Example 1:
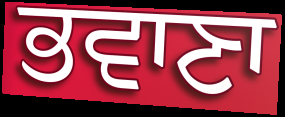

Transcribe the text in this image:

ਭਵਾਣਾ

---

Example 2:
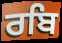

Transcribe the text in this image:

ਰਬਿ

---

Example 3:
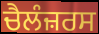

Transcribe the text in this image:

ਚੈਲੰਜ਼ਰਸ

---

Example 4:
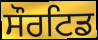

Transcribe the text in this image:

ਸੌਰਟਿਡ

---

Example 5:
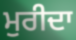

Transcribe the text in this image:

ਮੁਰੀਦਾ